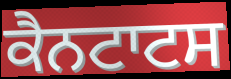
ਕੈਨਟਾਟਸ